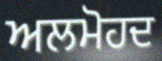
ਅਲਮੋਹਦ